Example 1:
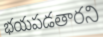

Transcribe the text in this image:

భయపడతారని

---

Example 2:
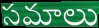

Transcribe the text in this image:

సమాలు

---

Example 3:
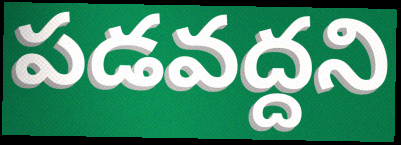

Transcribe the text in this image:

పడవద్దని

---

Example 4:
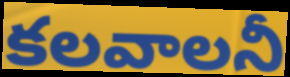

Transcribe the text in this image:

కలవాలనీ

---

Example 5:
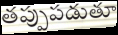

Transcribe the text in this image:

తప్పుపడుతూ